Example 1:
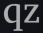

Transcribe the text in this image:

qz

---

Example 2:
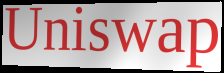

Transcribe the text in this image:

Uniswap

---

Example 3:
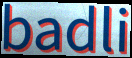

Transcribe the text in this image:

badli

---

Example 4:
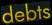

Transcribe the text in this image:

debts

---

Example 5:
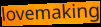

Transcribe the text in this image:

lovemaking